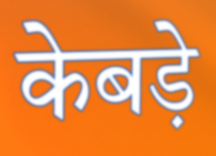
केबड़े